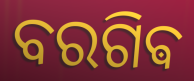
ବରଗିଵ